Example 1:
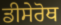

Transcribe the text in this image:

ਡੀਸੇਰੋਥ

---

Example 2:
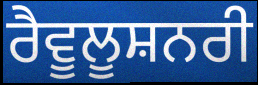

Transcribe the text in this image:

ਰੈਵੂਲੂਸ਼ਨਰੀ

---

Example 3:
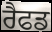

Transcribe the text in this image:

ਰੈਫਡ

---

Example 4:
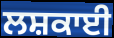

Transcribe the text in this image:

ਲਸ਼ਕਾਈ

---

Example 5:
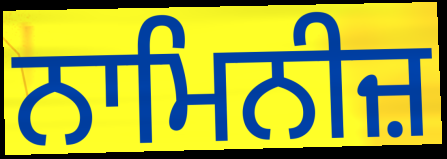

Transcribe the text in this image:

ਨਾਮਿਨੀਜ਼